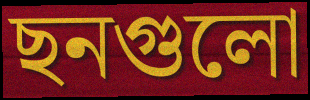
ছনগুলো